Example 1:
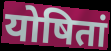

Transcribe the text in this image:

योषितां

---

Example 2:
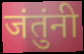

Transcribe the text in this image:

जंतुंनी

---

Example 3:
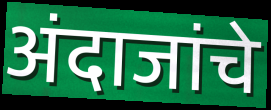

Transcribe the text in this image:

अंदाजांचे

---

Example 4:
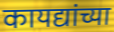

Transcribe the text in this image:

कायद्यांच्या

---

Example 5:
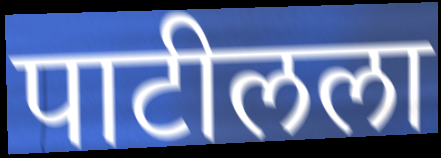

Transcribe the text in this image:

पाटीलला